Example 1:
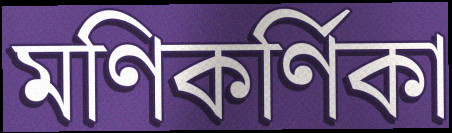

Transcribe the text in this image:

মণিকর্ণিকা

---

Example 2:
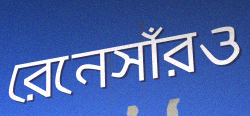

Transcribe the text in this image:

রেনেসাঁরও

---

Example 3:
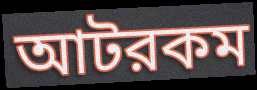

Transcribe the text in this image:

আটরকম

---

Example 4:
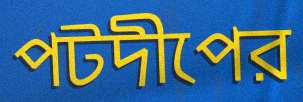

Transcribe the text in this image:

পটদীপের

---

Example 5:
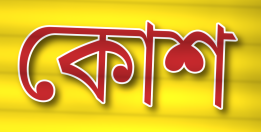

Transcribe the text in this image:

কোশ